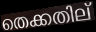
തെക്കതില്